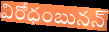
విరోధంబునన్